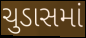
ચુડાસમાં